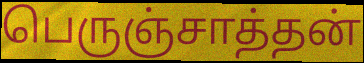
பெருஞ்சாத்தன்